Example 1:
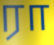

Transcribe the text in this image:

ரா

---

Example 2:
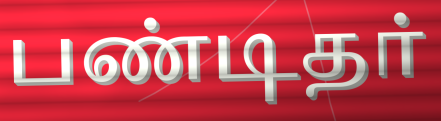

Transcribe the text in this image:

பண்டிதர்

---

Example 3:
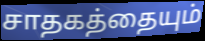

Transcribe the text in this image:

சாதகத்தையும்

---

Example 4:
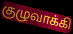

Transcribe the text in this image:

குழுவாக்கி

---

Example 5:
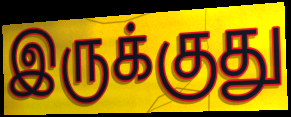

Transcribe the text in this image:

இருக்குது